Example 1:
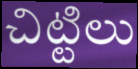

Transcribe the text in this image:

చిట్టిలు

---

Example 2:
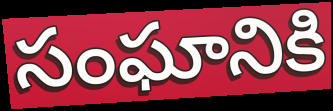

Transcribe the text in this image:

సంఘానికి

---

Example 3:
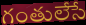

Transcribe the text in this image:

గంతులేసే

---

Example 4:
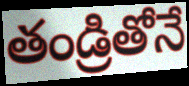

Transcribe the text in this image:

తండ్రితోనే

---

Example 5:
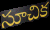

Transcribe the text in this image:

సూచిక